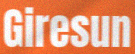
Giresun